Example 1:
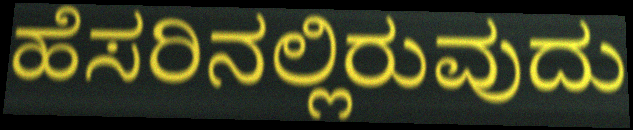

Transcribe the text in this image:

ಹೆಸರಿನಲ್ಲಿರುವುದು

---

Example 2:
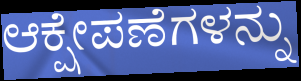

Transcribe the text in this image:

ಆಕ್ಷೇಪಣೆಗಳನ್ನು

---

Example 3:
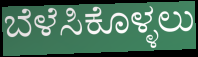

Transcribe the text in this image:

ಬೆಳೆಸಿಕೊಳ್ಳಲು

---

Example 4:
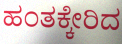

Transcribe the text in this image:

ಹಂತಕ್ಕೇರಿದ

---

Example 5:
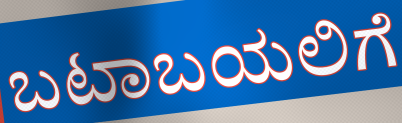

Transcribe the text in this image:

ಬಟಾಬಯಲಿಗೆ